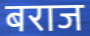
बराज